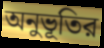
অনুভূতির